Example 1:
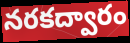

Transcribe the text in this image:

నరకద్వారం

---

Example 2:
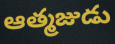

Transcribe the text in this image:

ఆత్మజుడు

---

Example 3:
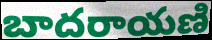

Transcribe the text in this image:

బాదరాయణి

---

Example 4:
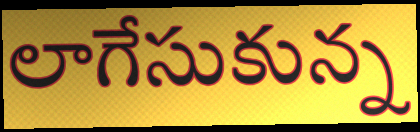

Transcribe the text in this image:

లాగేసుకున్న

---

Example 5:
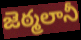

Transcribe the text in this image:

జెఠ్మలానీ